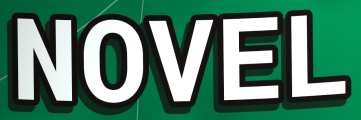
NOVEL